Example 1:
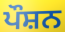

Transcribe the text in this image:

ਪੌਸ਼ਨ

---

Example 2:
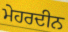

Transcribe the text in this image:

ਮੇਹਰਦੀਨ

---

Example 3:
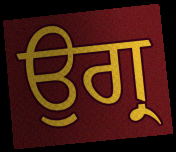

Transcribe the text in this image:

ਉਗ੍ਰ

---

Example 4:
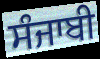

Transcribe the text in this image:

ਸੰਜਾਬੀ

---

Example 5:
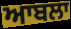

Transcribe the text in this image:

ਆਬਲਾ